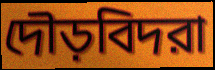
দৌড়বিদরা